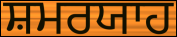
ਸ਼ਮਰਯਾਹ